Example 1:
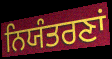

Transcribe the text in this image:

ਨਿਯੰਤਰਣਾਂ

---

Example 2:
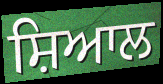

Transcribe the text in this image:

ਸ਼ਿਆਲ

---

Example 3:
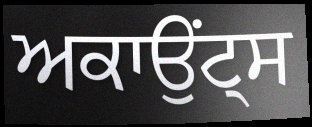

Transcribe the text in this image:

ਅਕਾਉਂਟ੍ਸ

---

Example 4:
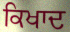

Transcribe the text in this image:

ਕਿਖਾਦ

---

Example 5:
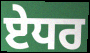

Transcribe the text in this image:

ਏਧਰ